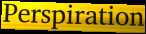
Perspiration